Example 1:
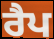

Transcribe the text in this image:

ਰੈਪ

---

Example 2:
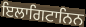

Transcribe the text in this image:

ਇਲਾਗਿਟਾਨਿਨ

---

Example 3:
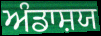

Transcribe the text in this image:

ਅੰਡਾਸ਼ਯ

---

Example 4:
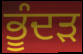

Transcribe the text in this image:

ਭੂੰਦੜ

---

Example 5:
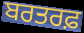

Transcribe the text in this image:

ਬਰਤਰਫ਼